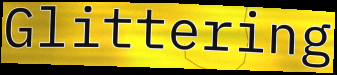
Glittering